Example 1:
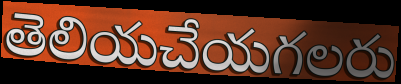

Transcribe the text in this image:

తెలియచేయగలరు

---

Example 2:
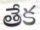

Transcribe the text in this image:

తేక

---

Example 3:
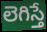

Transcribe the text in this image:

లెగిస్తే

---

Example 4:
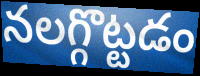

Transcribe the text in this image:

నలగ్గొట్టడం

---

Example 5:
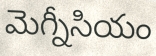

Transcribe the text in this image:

మెగ్నీసియం